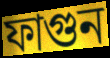
ফাগুন